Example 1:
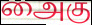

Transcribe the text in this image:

அைகு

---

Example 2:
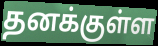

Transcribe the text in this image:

தனக்குள்ள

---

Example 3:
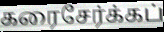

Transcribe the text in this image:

கரைசேர்க்கப்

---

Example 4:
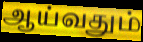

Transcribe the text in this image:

ஆய்வதும்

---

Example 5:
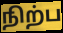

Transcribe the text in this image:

நிற்ப